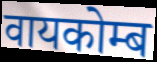
वायकोम्ब